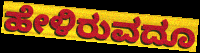
ಹೇಳಿರುವದೂ